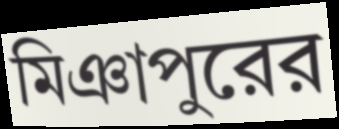
মিঞাপুরের